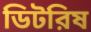
ডিটরিষ